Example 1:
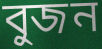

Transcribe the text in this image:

বুজন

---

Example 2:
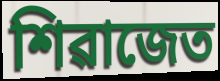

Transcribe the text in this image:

শিৱাজেত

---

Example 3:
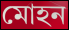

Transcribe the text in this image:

মোহন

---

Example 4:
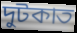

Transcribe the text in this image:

দুটকাত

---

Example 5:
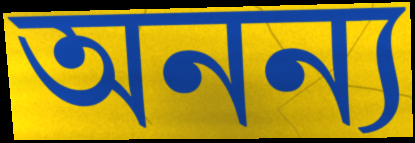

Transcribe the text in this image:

অনন্য